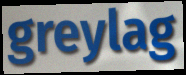
greylag